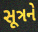
સૂત્રને